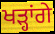
ਖੜ੍ਹਾਂਗੇ